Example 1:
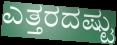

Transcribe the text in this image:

ಎತ್ತರದಷ್ಟು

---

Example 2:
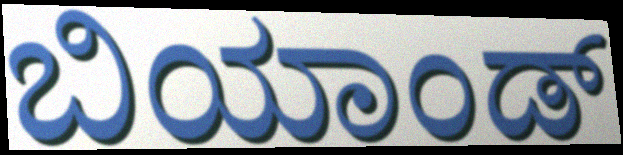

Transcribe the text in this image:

ಬಿಯಾಂಡ್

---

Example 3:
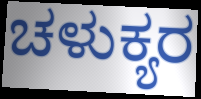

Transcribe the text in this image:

ಚಳುಕ್ಯರ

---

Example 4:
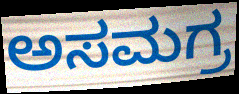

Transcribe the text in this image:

ಅಸಮಗ್ರ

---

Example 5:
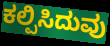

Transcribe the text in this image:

ಕಲ್ಪಿಸಿದುವು